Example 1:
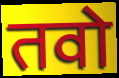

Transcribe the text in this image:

तवो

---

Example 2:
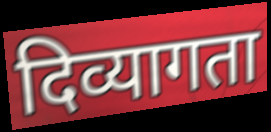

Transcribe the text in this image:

दिव्यागता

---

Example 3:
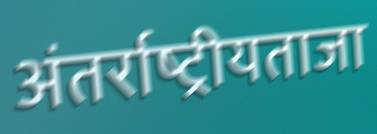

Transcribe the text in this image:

अंतर्राष्ट्रीयताजा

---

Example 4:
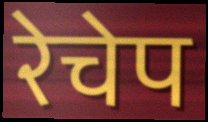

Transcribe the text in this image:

रेचेप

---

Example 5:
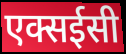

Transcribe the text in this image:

एक्सईसी